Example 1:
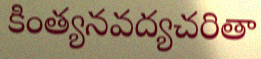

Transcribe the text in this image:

కింత్యనవద్యచరితా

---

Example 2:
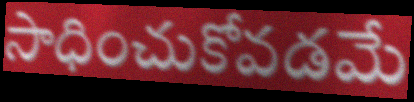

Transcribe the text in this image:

సాధించుకోవడమే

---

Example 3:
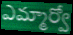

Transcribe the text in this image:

ఎమ్మార్వో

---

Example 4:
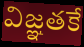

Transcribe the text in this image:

విజ్ఞతకే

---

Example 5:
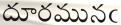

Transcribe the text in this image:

దూరమునఁ